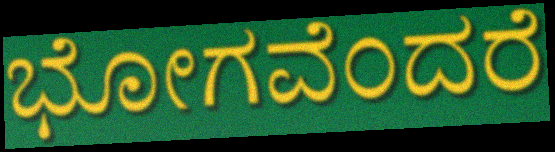
ಭೋಗವೆಂದರೆ